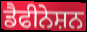
ਡੈਫੀਨੇਸ਼ਨ